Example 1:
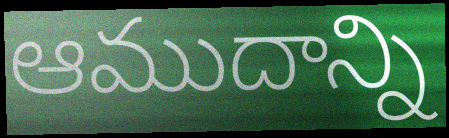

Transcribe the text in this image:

ఆముదాన్ని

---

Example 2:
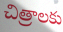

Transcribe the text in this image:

చిత్రాలకు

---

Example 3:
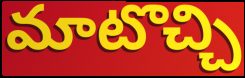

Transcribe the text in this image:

మాటొచ్చి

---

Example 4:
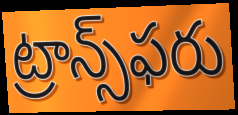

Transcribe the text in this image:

ట్రాన్స్‌ఫరు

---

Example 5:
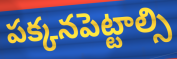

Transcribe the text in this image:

పక్కనపెట్టాల్సి